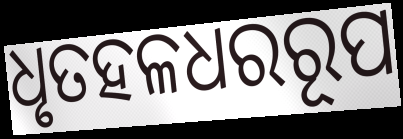
ଧୃତହଳଧରରୂପ